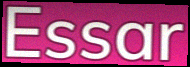
Essar